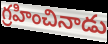
గ్రహించినాడు